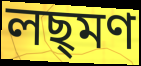
লছ্মণ